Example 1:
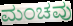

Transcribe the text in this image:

ಮಂಚವು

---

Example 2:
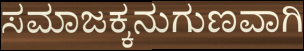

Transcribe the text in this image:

ಸಮಾಜಕ್ಕನುಗುಣವಾಗಿ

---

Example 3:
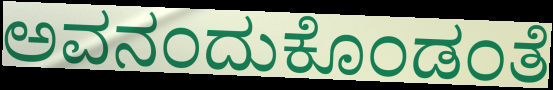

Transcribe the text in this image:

ಅವನಂದುಕೊಂಡಂತೆ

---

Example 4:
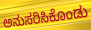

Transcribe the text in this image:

ಅನುಸರಿಸಿಕೊಂಡು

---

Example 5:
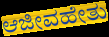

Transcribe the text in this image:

ಆಜೀವಹೇತು